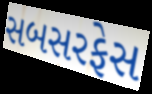
સબસરફેસ